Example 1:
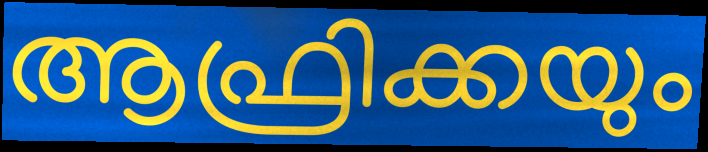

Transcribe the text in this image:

ആഫ്രിക്കയും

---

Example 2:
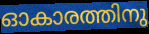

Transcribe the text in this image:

ഓകാരത്തിനു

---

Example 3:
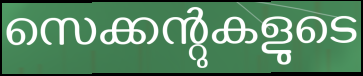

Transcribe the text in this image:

സെക്കന്റുകളുടെ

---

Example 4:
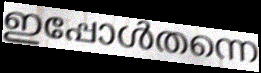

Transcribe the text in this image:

ഇപ്പോൾതന്നെ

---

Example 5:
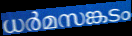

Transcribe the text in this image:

ധർമസങ്കടം